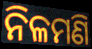
ନିଳମଣି